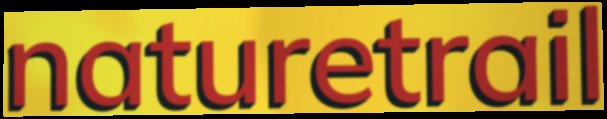
naturetrail